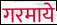
गरमाये